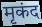
मृकंद